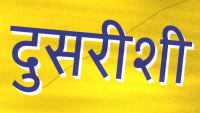
दुसरीशी